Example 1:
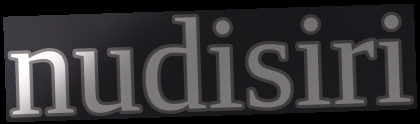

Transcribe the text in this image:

nudisiri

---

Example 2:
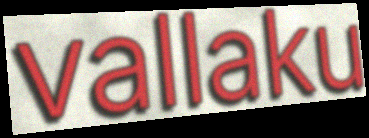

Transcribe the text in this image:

vallaku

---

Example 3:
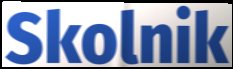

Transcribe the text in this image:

Skolnik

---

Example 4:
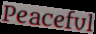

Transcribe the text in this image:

Peaceful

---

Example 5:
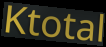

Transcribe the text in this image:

Ktotal